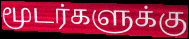
மூடர்களுக்கு